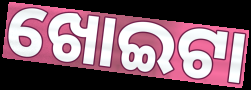
ଖୋଇଟା